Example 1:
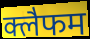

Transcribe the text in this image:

क्लैफम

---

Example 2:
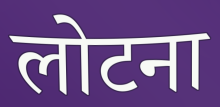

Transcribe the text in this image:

लोटना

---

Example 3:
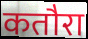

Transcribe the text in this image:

कतौरा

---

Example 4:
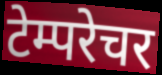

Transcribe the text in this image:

टेम्परेचर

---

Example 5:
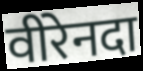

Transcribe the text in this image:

वीरेनदा